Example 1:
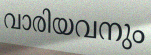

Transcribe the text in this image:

വാരിയവനും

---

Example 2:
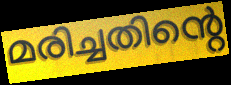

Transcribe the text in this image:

മരിച്ചതിന്റെ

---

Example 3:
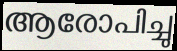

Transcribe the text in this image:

ആരോപിച്ചു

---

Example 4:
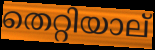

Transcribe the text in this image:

തെറ്റിയാല്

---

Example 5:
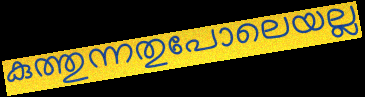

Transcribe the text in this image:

കുത്തുന്നതുപോലെയല്ല